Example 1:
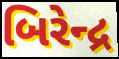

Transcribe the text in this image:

બિરેન્દ્ર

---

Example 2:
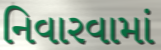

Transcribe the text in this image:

નિવારવામાં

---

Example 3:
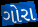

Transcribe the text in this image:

ગોરા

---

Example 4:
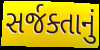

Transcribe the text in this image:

સર્જક્તાનું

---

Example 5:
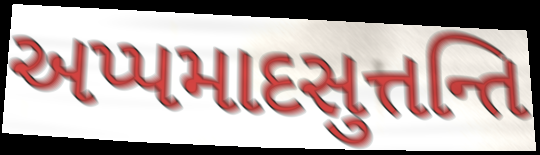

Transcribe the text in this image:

અપ્પમાદસુત્તન્તિ